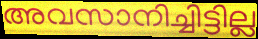
അവസാനിച്ചിട്ടില്ല